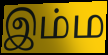
இம்ம